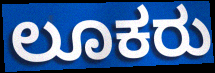
ಲೂಕರು